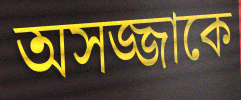
অসজ্জাকে